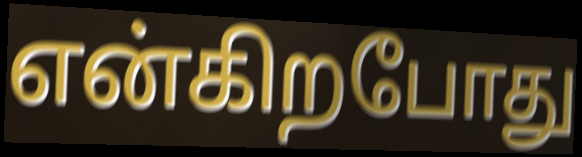
என்கிறபோது